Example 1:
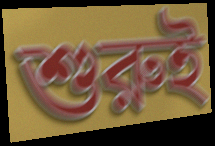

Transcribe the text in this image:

শুরুই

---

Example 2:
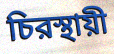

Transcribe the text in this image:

চিরস্থায়ী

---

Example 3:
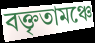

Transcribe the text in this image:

বক্তৃতামঞ্চে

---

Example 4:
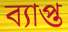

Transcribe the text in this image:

ব্যাপ্ত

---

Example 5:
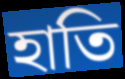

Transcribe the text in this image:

হাতি